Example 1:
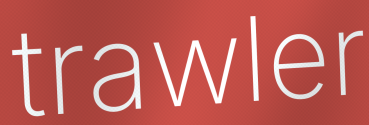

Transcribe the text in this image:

trawler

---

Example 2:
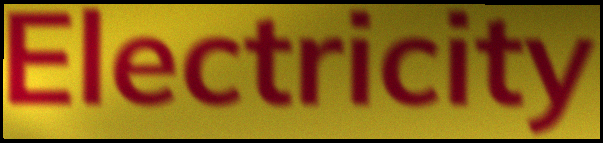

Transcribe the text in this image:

Electricity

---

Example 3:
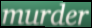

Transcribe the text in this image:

murder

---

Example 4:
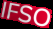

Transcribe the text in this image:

IFSO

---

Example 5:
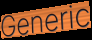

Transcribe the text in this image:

Generic